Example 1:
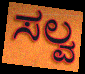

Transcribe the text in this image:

ಸಲ್ವ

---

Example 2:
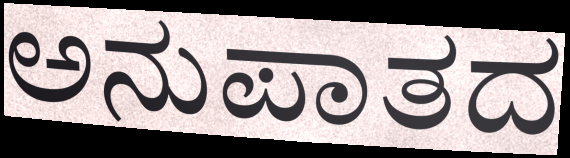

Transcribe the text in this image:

ಅನುಪಾತದ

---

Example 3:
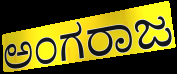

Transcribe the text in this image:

ಅಂಗರಾಜ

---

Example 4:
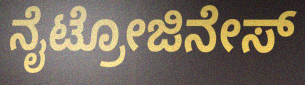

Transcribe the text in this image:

ನೈಟ್ರೋಜಿನೇಸ್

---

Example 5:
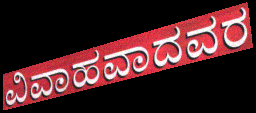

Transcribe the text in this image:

ವಿವಾಹವಾದವರ